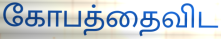
கோபத்தைவிட